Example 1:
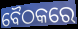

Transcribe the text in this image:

ବୈଠକରେ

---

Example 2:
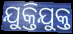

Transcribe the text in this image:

ଯୁକ୍ତିଯୁକ୍ତ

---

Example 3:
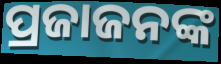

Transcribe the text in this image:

ପ୍ରଜାଜନଙ୍କ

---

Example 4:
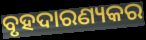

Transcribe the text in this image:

ବୃହଦାରଣ୍ୟକର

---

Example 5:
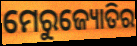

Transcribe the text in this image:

ମେରୁଜ୍ୟୋତିର